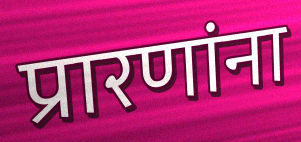
प्रारणांना